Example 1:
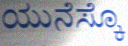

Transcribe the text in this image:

ಯುನೆಸ್ಕೊ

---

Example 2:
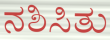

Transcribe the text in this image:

ನಶಿಸಿತು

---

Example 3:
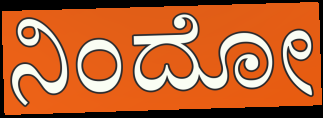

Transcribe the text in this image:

ನಿಂದೋ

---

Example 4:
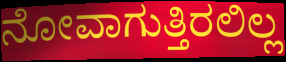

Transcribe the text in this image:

ನೋವಾಗುತ್ತಿರಲಿಲ್ಲ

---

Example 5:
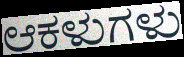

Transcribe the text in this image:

ಆಕಳುಗಳು